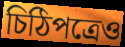
চিঠিপত্রেও